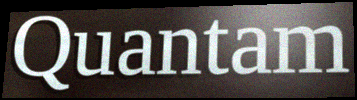
Quantam